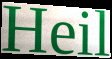
Heil